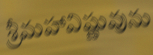
శ్రీమహావిష్ణువును